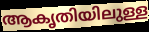
ആകൃതിയിലുള്ള